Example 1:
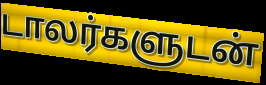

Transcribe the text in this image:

டாலர்களுடன்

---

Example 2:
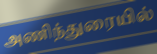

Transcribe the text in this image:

அணிந்துரையில்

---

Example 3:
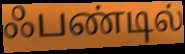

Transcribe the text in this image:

ஃபண்டில்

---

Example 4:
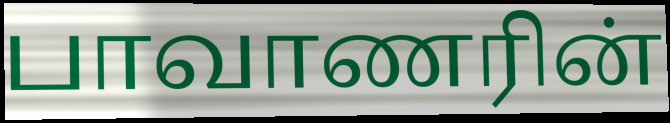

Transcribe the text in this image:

பாவாணரின்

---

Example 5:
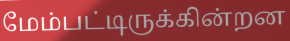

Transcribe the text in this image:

மேம்பட்டிருக்கின்றன